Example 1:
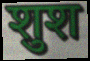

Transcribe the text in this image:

शुश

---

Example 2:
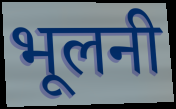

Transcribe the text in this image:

भूलनी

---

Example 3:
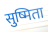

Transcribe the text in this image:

सुष्मिता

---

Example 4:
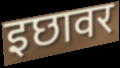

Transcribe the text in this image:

इछावर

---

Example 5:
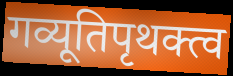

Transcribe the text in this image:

गव्यूतिपृथक्त्व